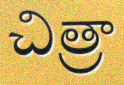
చిత్రా